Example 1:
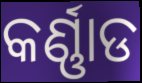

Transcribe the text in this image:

କର୍ଣ୍ଣାଡ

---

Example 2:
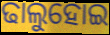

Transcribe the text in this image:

ଢାଲୁହୋଇ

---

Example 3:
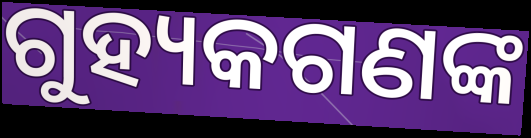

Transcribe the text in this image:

ଗୁହ୍ୟକଗଣଙ୍କ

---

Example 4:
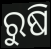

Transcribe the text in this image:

ରୁଷି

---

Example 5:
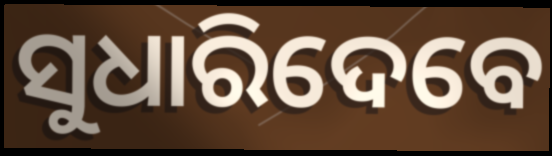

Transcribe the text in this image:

ସୁଧାରିଦେବେ